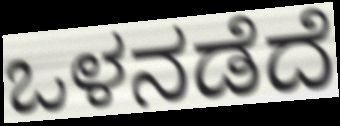
ಒಳನಡೆದೆ